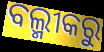
ବଲ୍ମୀକରୁ